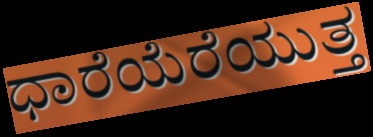
ಧಾರೆಯೆರೆಯುತ್ತ